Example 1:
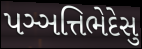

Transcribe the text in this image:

પઞ્ઞત્તિભેદેસુ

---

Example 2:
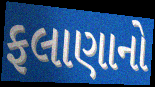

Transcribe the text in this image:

ફલાણાનો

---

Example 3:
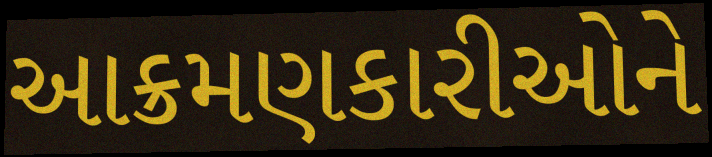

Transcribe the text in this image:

આક્રમણકારીઓને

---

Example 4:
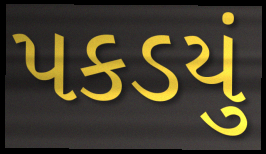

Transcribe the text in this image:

પકડયું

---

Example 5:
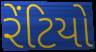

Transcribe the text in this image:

રેંટિયો